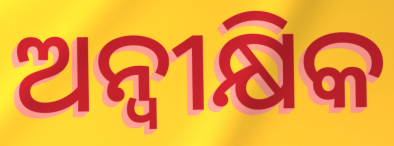
ଅନ୍ୱୀକ୍ଷିକ